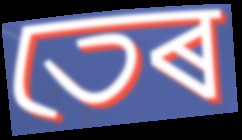
তেৰ